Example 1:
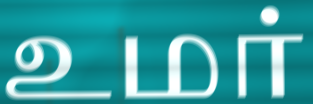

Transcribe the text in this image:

உமர்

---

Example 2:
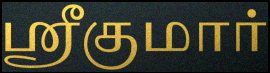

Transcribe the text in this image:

ஸ்ரீகுமார்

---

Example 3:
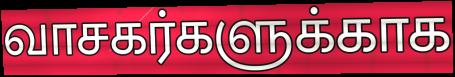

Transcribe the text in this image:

வாசகர்களுக்காக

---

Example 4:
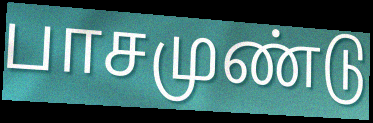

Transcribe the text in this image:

பாசமுண்டு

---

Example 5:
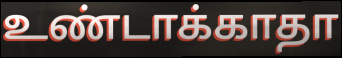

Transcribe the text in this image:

உண்டாக்காதா